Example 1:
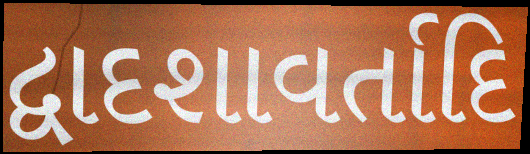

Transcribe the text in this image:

દ્વાદશાવર્તાદિ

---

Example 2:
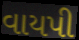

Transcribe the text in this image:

વાયપી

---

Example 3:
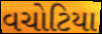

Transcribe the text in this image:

વચોટિયા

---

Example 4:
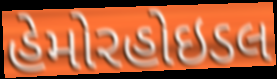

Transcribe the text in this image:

હેમોરહોઇડલ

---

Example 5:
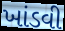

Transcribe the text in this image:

ખાંડવી